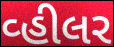
વ્હીલર